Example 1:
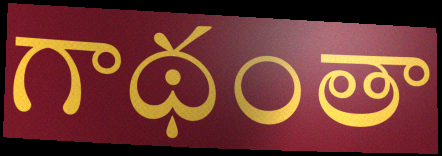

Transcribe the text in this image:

గాథంతా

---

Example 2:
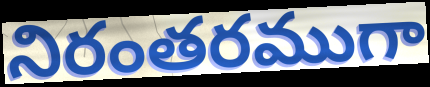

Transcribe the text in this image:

నిరంతరముగా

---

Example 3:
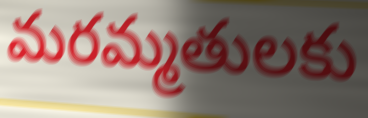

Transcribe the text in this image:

మరమ్మతులకు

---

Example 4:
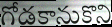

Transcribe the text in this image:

గోడకానుకొని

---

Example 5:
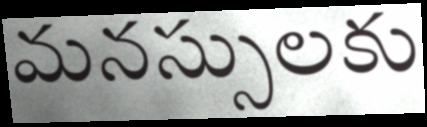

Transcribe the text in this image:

మనస్సులకు